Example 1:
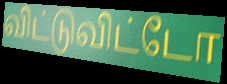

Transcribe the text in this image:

விட்டுவிட்டோ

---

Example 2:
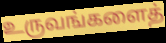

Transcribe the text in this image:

உருவங்களைத்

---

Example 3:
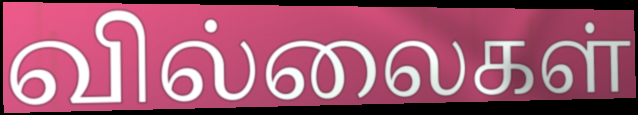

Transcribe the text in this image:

வில்லைகள்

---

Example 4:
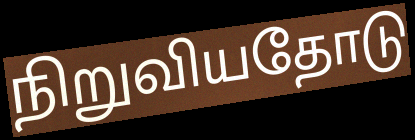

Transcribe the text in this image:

நிறுவியதோடு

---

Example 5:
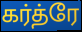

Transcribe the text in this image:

கர்த்ரே